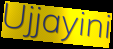
Ujjayini